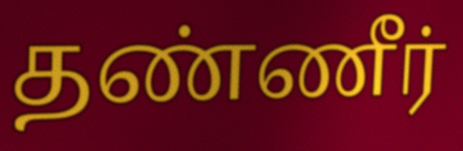
தண்ணீர்